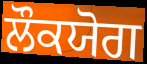
ਲੌਕਯੋਗ